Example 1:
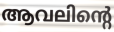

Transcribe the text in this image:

ആവലിന്റെ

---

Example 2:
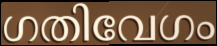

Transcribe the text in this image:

ഗതിവേഗം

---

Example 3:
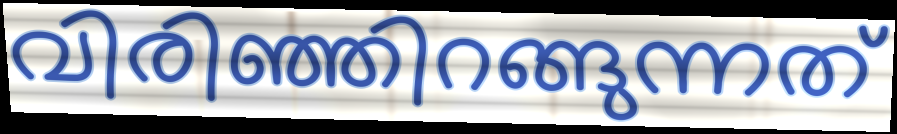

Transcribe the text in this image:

വിരിഞ്ഞിറങ്ങുന്നത്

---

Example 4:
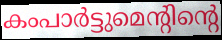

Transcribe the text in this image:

കംപാർട്ടുമെന്റിന്റെ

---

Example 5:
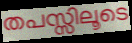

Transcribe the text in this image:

തപസ്സിലൂടെ